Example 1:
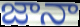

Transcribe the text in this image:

జానా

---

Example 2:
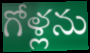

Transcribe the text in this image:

గోళ్లను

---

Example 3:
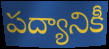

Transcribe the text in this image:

పద్యానికీ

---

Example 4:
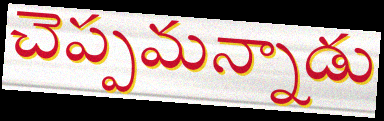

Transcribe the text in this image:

చెప్పమన్నాడు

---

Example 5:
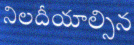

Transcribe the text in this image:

నిలదీయాల్సిన